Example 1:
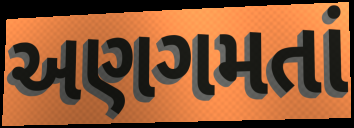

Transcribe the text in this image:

અણગમતાં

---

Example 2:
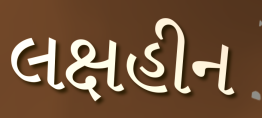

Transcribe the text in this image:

લક્ષહીન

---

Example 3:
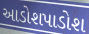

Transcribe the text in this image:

આડોશપાડોશ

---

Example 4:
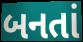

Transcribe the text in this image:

બનતાં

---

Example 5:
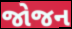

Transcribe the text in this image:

જોજન